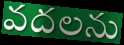
వదలను